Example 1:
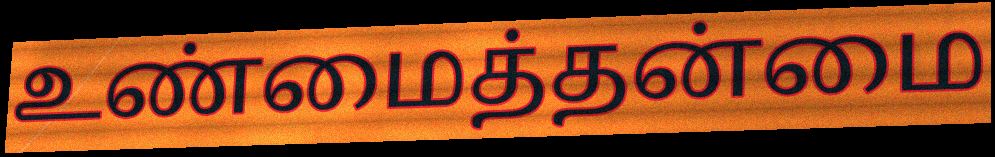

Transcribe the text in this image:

உண்மைத்தன்மை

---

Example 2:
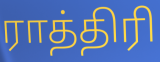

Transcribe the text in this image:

ராத்திரி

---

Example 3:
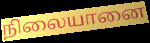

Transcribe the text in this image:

நிலையானை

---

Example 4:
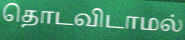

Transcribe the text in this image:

தொடவிடாமல்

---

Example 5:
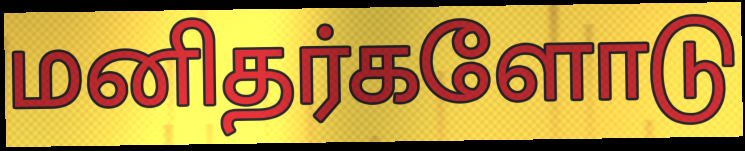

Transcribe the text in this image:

மனிதர்களோடு